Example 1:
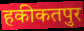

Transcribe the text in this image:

हकीकतपुर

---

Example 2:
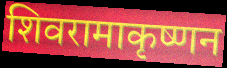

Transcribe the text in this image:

शिवरामाकृष्णन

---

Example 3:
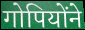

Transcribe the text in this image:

गोपियोंने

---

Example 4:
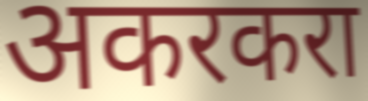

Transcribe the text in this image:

अकरकरा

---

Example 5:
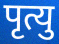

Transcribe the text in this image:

पृत्यु